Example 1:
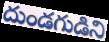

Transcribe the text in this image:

దుండగుడిని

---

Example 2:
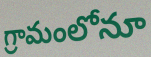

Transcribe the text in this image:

గ్రామంలోనూ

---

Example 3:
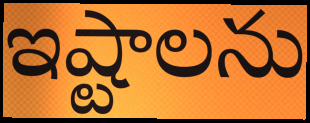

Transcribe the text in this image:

ఇష్టాలను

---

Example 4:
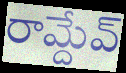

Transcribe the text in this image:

రామ్దేవ్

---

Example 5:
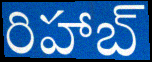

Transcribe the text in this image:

రిహాబ్